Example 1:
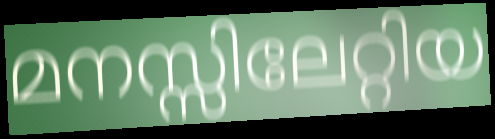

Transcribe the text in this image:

മനസ്സിലേറ്റിയ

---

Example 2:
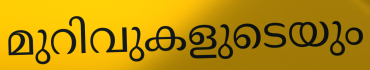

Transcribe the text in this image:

മുറിവുകളുടെയും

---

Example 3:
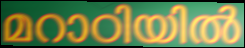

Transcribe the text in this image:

മറാഠിയിൽ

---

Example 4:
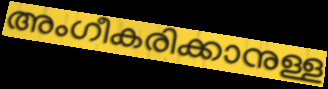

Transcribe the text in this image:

അംഗീകരിക്കാനുള്ള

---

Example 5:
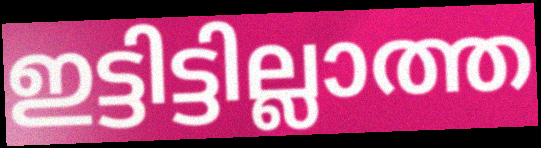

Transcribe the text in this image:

ഇട്ടിട്ടില്ലാത്ത